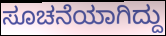
ಸೂಚನೆಯಾಗಿದ್ದು